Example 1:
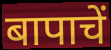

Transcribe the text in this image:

बापाचें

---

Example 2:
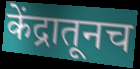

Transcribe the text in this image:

केंद्रातूनच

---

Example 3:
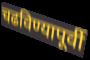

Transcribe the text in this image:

चढविण्यापूर्वी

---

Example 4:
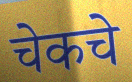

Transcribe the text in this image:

चेकचे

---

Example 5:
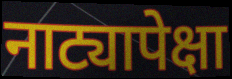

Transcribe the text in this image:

नाट्यापेक्षा